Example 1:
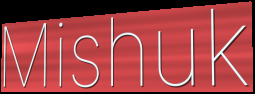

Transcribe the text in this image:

Mishuk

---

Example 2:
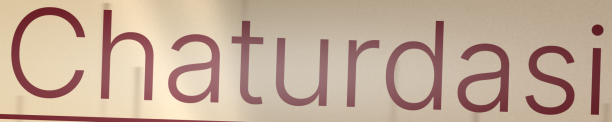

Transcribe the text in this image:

Chaturdasi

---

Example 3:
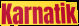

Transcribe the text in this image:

Karnatik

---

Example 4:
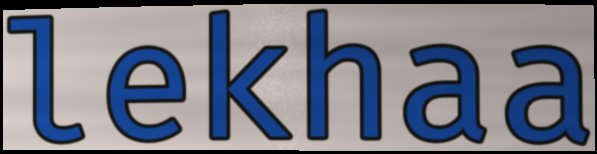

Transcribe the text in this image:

lekhaa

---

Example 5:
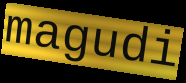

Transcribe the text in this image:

magudi